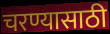
चरण्यासाठी